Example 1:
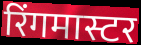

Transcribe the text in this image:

रिंगमास्टर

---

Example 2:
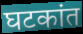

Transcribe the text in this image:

घटकांत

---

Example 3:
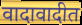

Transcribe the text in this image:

वादावादीत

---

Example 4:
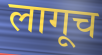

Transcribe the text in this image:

लागूच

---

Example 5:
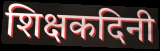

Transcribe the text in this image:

शिक्षकदिनी